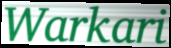
Warkari